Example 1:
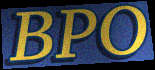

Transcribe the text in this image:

BPO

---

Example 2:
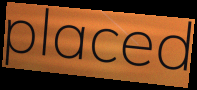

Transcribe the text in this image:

placed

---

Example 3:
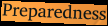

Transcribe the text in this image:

Preparedness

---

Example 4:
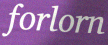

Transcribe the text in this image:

forlorn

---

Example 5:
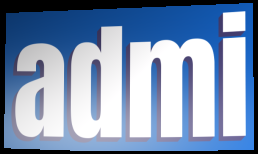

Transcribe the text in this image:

admi